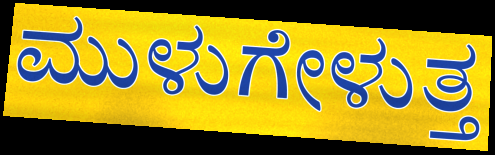
ಮುಳುಗೇಳುತ್ತ